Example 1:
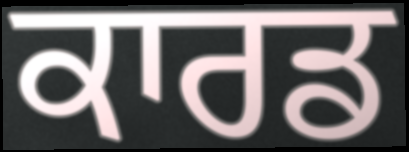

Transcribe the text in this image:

ਕਾਰਡ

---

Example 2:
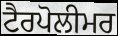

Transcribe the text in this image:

ਟੈਰਪੋਲੀਮਰ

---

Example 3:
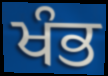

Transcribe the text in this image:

ਖੰਭ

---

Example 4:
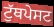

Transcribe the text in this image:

ਟੁੱਥਪੇਸਟ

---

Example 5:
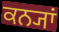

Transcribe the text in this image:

ਕਨ੍ਯਾਂ